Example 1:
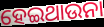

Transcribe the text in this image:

ହେଇଥାଉନା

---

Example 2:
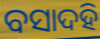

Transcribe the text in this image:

ବସାଦହି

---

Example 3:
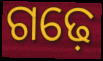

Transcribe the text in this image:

ଗଢ଼େ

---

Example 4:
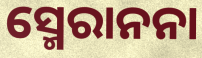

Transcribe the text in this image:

ସ୍ମେରାନନା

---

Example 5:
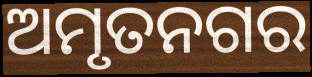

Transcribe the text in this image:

ଅମୃତନଗର